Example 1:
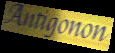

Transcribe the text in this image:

Antigonon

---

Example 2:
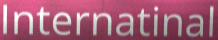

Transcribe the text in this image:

Internatinal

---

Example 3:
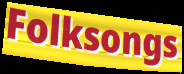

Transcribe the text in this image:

Folksongs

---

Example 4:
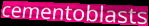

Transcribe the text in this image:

cementoblasts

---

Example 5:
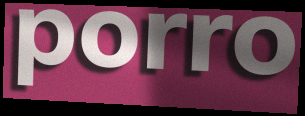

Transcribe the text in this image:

porro